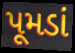
પૂમડાં